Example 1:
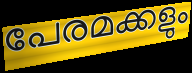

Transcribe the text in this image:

പേരമക്കളും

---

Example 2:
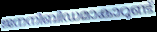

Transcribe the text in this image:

ജനനിബിഡമാകാറുണ്ട്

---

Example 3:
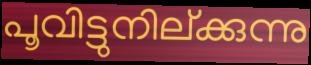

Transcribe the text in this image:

പൂവിട്ടുനില്ക്കുന്നു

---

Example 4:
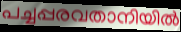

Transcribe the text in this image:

പച്ചപ്പരവതാനിയിൽ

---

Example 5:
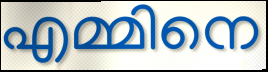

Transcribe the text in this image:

എമ്മിനെ